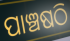
ପାଞ୍ଚଷଠି